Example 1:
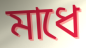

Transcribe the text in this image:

মাধে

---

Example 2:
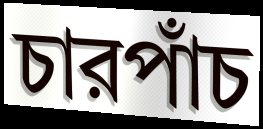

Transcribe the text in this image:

চারপাঁচ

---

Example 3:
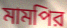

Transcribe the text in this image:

মামপির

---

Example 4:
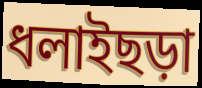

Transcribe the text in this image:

ধলাইছড়া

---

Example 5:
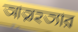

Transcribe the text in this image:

আত্মহত্যার